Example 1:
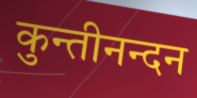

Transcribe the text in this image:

कुन्तीनन्दन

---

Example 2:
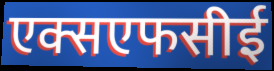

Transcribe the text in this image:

एक्सएफसीई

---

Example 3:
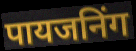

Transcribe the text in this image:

पायजनिंग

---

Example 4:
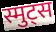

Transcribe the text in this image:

स्मुट्स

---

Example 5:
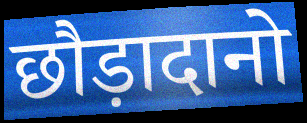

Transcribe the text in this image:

छौड़ादानो